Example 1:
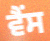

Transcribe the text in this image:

ਵੈਂਸ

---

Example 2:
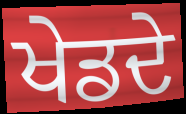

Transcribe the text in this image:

ਖੇਡਦੇ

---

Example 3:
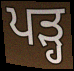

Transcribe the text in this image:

ਪੜ੍ਹ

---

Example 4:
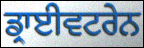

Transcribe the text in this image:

ਡ੍ਰਾਈਵਟਰੇਨ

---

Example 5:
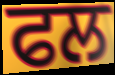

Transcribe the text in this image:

ਫਲ